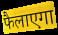
फैलाएगा